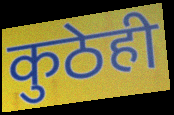
कुठेही